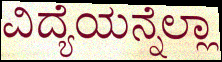
ವಿದ್ಯೆಯನ್ನೆಲ್ಲಾ